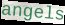
angels